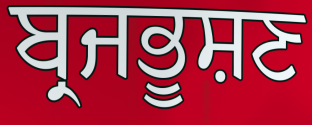
ਬ੍ਰਜਭੂਸ਼ਣ